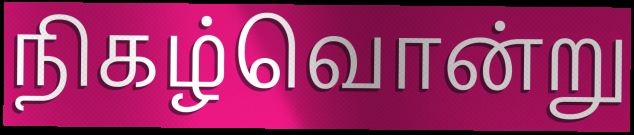
நிகழ்வொன்று